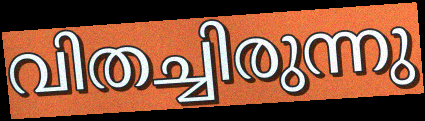
വിതച്ചിരുന്നു